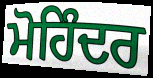
ਮੋਹਿੰਦਰ